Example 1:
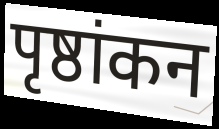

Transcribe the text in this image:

पृष्ठांकन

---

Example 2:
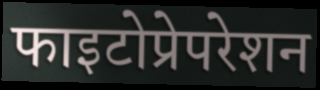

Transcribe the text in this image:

फाइटोप्रेपरेशन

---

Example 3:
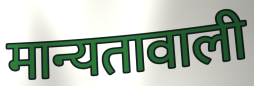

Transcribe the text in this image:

मान्यतावाली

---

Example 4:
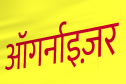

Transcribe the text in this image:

ऑगर्नाइज़र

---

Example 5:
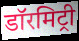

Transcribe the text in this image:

डॉरमिट्री